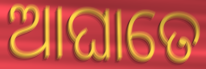
ଆଘାତେ